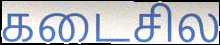
கடைசில